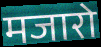
मजारो